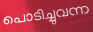
പൊടിച്ചുവന്ന